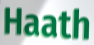
Haath